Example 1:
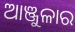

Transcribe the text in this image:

ଆଞ୍ଜୁଳାର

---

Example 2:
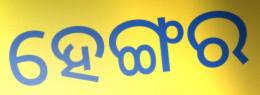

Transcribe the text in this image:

ହେଙ୍ଗର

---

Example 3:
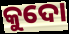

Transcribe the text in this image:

କୁଦୋ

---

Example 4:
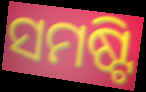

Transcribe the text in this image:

ସମଷ୍ଟି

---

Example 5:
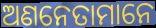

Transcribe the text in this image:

ଅଣନେତାମାନେ